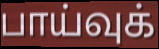
பாய்வுக்